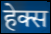
हेक्स